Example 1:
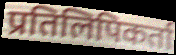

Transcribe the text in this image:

प्रतिलिपिकर्ता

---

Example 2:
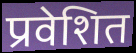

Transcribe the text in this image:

प्रवेशित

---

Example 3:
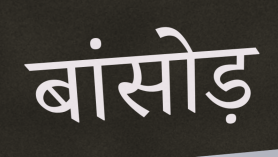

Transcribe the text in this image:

बांसोड़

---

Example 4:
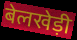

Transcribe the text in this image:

बेलखेड़ी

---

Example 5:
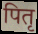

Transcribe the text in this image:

पितृ